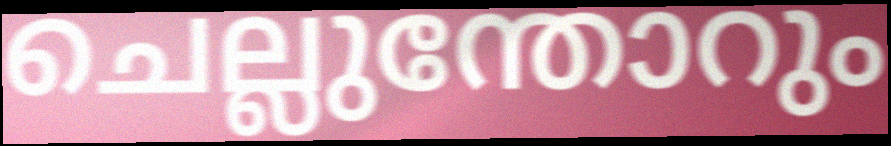
ചെല്ലുന്തോറും